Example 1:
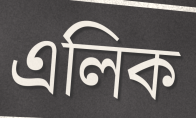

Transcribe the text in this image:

এলিক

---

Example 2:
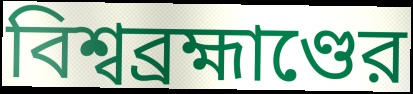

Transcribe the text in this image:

বিশ্বব্রহ্মাণ্ডের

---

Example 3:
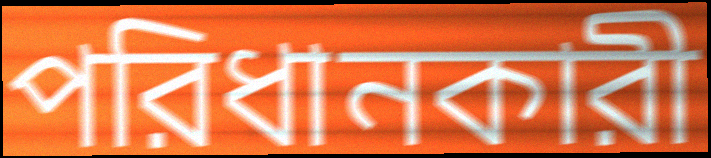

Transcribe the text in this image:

পরিধানকারী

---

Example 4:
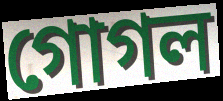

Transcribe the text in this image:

গোগল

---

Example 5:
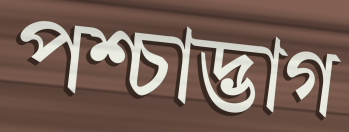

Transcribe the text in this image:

পশ্চাদ্ভাগ